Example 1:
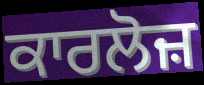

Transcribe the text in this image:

ਕਾਰਲੋਜ਼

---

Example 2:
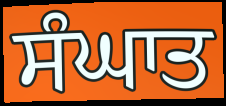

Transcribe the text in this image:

ਸੰਘਾਤ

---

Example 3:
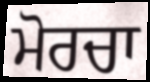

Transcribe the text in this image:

ਮੋਰਚਾ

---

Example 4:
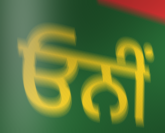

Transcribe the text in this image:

ਓਨੀਂ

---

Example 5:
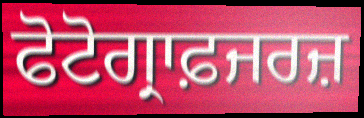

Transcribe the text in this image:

ਫੋਟੋਗ੍ਰਾਫ਼ਜਰਜ਼